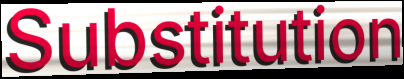
Substitution